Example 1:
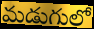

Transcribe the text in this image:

మడుగులో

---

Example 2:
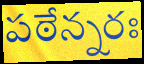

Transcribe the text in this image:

పఠేన్నరః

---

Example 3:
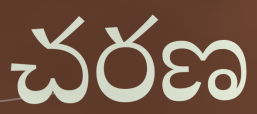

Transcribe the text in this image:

చరణ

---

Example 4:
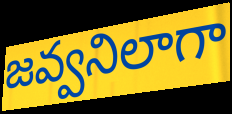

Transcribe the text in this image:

జవ్వనిలాగా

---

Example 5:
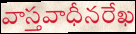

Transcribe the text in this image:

వాస్తవాధీనరేఖ